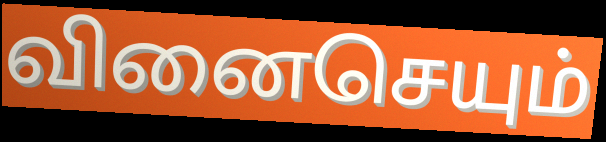
வினைசெயும்